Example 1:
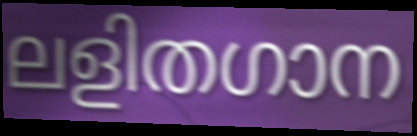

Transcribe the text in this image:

ലളിതഗാന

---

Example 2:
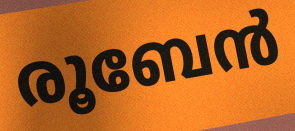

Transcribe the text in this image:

രൂബേൻ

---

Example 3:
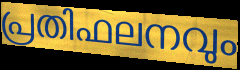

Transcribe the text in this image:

പ്രതിഫലനവും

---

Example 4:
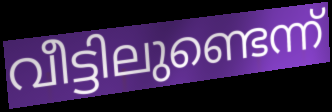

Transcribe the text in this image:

വീട്ടിലുണ്ടെന്ന്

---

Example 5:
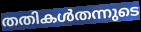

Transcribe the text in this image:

തതികൾതന്നുടെ